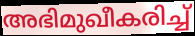
അഭിമുഖീകരിച്ച്